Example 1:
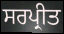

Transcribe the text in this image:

ਸਰਪ੍ਰੀਤ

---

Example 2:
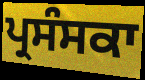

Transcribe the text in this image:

ਪ੍ਰਸੰਸਕਾ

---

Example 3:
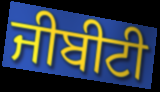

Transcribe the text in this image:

ਜੀਬੀਟੀ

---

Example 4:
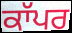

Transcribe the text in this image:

ਕਾੱਪਰ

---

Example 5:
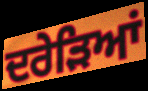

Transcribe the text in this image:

ਦਰੇੜਿਆਂ